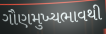
ગૌણમુખ્યભાવથી